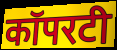
कॉपरटी